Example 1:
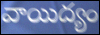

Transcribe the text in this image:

వాయిద్యం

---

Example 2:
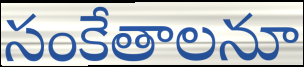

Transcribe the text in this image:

సంకేతాలనూ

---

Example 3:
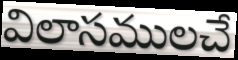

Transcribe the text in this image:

విలాసములచే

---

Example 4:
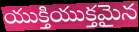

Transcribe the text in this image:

యుక్తియుక్తమైన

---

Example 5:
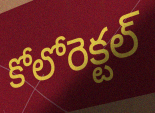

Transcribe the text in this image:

కోలోరెక్టల్